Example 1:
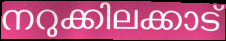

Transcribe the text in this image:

നറുക്കിലക്കാട്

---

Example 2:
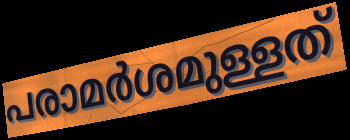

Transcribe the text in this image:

പരാമർശമുള്ളത്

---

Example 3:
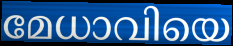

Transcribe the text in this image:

മേധാവിയെ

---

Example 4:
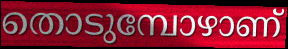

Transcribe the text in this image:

തൊടുമ്പോഴാണ്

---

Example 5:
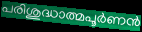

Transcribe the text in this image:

പരിശുദ്ധാത്മപൂർണൻ